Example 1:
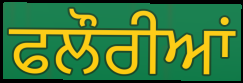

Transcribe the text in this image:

ਫਲੌਰੀਆਂ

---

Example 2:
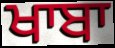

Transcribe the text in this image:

ਖਾਬਾ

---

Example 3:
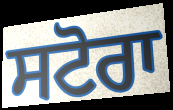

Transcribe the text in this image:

ਸਟੋਰਾ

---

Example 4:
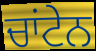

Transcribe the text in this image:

ਚਾਂਟੇਨ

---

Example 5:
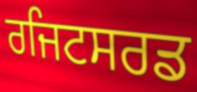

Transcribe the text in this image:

ਰਜਿਟਸਰਡ